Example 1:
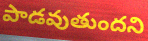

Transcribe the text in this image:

పాడవుతుందని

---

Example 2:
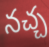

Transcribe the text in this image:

నచ్చ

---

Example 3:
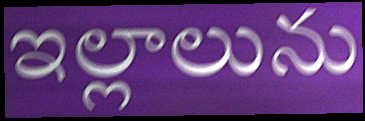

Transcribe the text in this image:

ఇల్లాలును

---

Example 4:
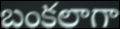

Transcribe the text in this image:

బంకలాగా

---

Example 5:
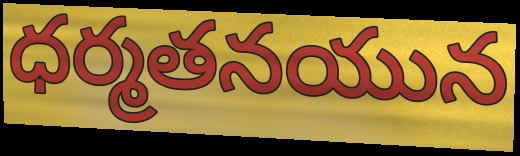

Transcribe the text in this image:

ధర్మతనయున